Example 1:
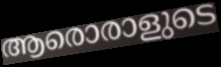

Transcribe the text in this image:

ആരൊരാളുടെ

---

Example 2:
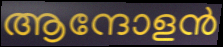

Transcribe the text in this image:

ആന്ദോളൻ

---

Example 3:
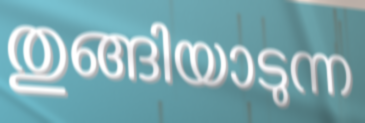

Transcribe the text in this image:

തുങ്ങിയാടുന്ന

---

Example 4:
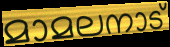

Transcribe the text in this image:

മാമലനാട്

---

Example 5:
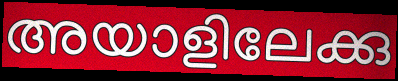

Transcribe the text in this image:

അയാളിലേക്കു